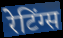
रेटिंग्स